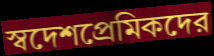
স্বদেশপ্রেমিকদের